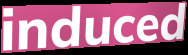
induced